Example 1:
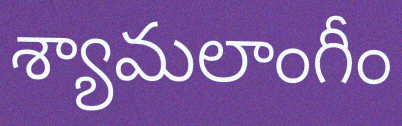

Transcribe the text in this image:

శ్యామలాంగీం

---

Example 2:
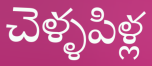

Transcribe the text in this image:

చెళ్ళపిళ్ల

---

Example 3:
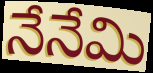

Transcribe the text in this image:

నేనేమి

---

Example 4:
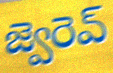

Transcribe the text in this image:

జ్వెరెవ్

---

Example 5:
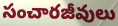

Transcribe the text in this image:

సంచారజీవులు